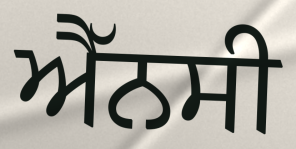
ਐੱਨਸੀ